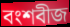
বংশবীজ